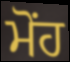
ਮੋਂਹ